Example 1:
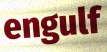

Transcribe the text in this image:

engulf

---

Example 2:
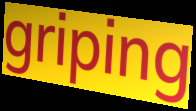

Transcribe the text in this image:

griping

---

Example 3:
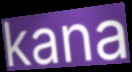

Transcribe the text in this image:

kana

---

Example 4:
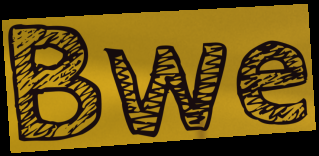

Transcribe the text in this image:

Bwe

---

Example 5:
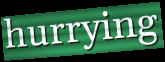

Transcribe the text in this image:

hurrying